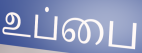
உப்பை